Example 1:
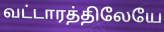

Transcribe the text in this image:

வட்டாரத்திலேயே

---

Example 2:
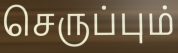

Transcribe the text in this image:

செருப்பும்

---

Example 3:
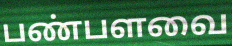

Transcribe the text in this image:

பண்பளவை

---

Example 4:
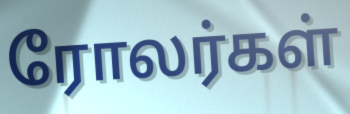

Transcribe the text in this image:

ரோலர்கள்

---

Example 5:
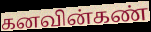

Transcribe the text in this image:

கனவின்கண்